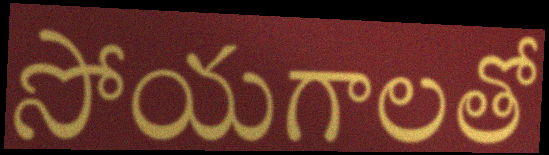
సోయగాలతో